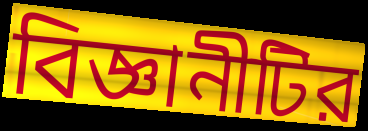
বিজ্ঞানীটির